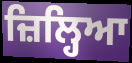
ਜ਼ਿਲ੍ਹਿਆ